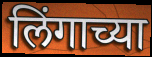
लिंगाच्या